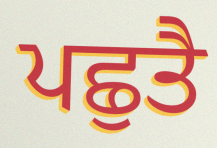
ਪਛੁਤੈ